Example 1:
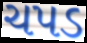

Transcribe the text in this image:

ચપડ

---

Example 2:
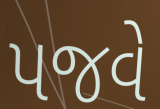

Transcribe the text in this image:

પજવે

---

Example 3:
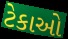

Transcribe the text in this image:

ટેકાઓ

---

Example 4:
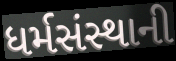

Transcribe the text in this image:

ધર્મસંસ્થાની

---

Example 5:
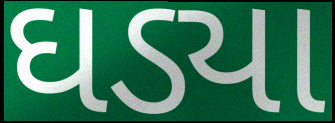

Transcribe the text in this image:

ઘડ્યા